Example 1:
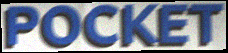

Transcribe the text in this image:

POCKET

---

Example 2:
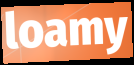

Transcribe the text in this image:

loamy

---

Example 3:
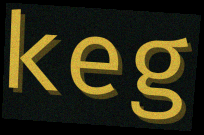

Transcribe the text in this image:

keg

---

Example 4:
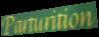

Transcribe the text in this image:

Parturition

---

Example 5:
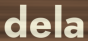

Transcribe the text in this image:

dela